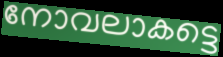
നോവലാകട്ടെ